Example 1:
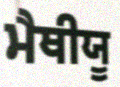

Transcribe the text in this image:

ਮੈਥੀਯੂ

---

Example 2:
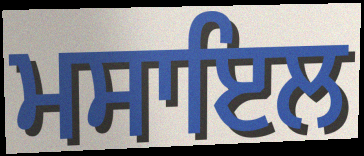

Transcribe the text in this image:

ਮਸਾਇਲ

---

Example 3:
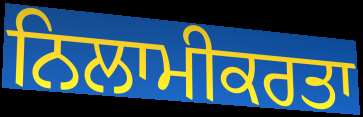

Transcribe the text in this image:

ਨਿਲਾਮੀਕਰਤਾ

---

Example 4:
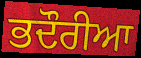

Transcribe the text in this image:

ਭਦੌਰੀਆ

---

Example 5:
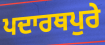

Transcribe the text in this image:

ਪਦਾਰਥਪੁਰੇ